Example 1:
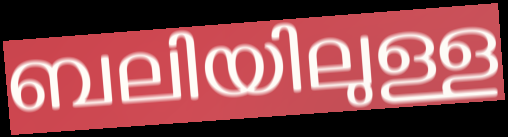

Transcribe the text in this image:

ബലിയിലുള്ള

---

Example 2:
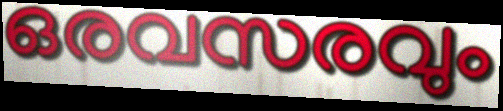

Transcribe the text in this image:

ഒരവസരവും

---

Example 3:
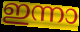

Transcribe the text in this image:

ഇന്നാ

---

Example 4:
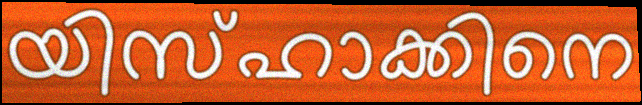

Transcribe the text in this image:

യിസ്ഹാക്കിനെ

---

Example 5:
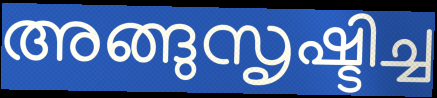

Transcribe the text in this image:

അങ്ങുസൃഷ്ടിച്ച